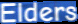
Elders